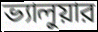
ভ্যালুয়ার